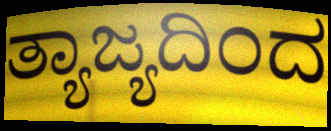
ತ್ಯಾಜ್ಯದಿಂದ